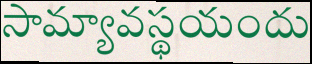
సామ్యావస్థయందు